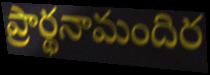
ప్రార్థనామందిర